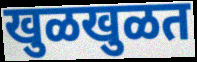
खुळखुळत